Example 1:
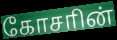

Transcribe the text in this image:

கோசரின்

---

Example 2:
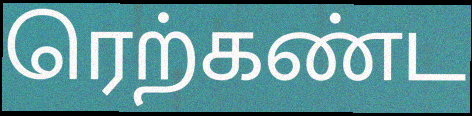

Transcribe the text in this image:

ரெற்கண்ட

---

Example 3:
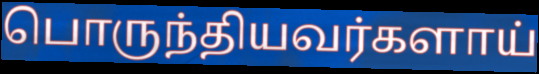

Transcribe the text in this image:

பொருந்தியவர்களாய்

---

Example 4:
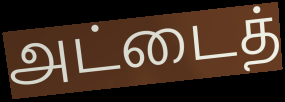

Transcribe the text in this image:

அட்டைத்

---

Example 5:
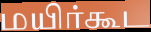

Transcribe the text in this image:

மயிர்கூட